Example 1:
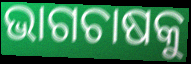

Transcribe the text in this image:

ଭାଗଚାଷକୁ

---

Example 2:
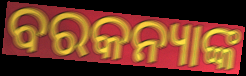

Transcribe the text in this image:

ବରକନ୍ୟାଙ୍କ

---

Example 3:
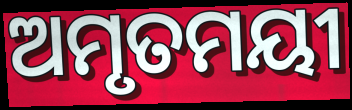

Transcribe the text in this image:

ଅମୃତମୟୀ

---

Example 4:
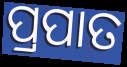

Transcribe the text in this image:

ପ୍ରପାତ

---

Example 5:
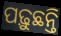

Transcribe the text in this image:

ପଢ଼ୁଛନ୍ତି